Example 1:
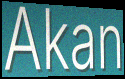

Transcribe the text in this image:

Akan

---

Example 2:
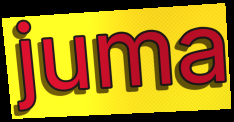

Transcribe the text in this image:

juma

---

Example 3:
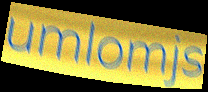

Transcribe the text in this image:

umlomjs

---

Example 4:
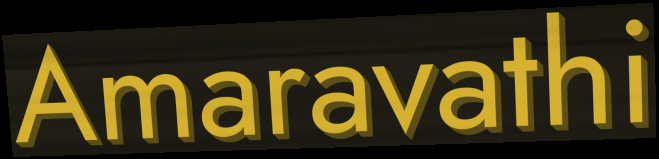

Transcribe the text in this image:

Amaravathi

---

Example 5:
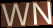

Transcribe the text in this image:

WN